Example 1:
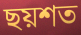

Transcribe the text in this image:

ছয়শত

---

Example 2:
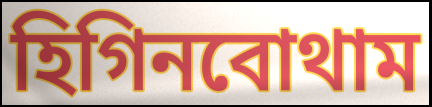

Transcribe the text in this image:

হিগিনবোথাম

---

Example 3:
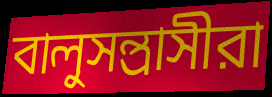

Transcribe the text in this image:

বালুসন্ত্রাসীরা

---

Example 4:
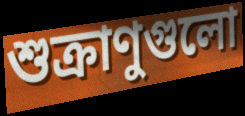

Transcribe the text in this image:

শুক্রাণুগুলো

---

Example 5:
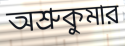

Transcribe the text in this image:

অশ্রুকুমার